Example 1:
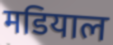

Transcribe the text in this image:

मडियाल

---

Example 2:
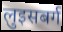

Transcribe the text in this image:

लुइसबर्ग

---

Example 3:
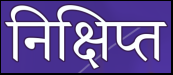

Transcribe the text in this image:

निक्षिप्त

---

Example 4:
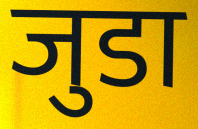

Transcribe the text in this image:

जुडा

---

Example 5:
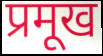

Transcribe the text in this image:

प्रमूख